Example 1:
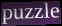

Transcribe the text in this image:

puzzle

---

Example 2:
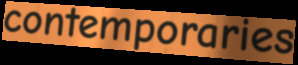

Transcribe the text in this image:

contemporaries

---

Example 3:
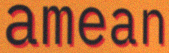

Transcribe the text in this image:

amean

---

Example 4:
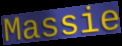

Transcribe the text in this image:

Massie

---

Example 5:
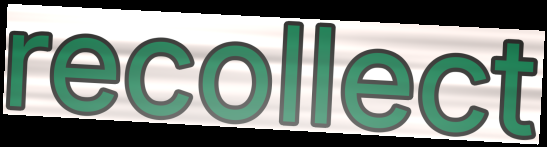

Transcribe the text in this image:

recollect